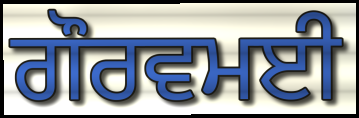
ਗੌਰਵਮਈ